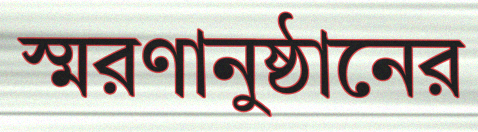
স্মরণানুষ্ঠানের